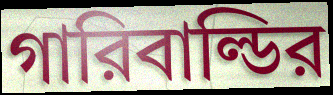
গারিবাল্ডির